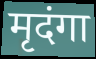
मृदंगा